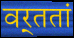
वर्ततां